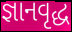
જ્ઞાનવૃદ્ધ